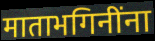
माताभगिनींना